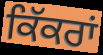
ਕਿੱਕਰਾਂ